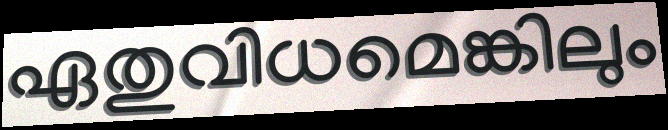
ഏതുവിധമെങ്കിലും